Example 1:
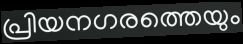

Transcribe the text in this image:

പ്രിയനഗരത്തെയും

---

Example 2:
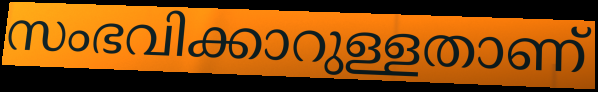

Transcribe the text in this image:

സംഭവിക്കാറുള്ളതാണ്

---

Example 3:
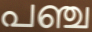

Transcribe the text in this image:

പഞ്ച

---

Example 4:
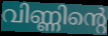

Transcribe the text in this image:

വിണ്ണിന്റെ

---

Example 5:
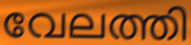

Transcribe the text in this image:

വേലത്തി